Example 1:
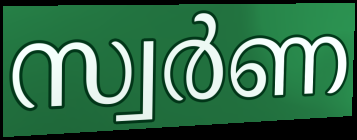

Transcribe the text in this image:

സ്വർണ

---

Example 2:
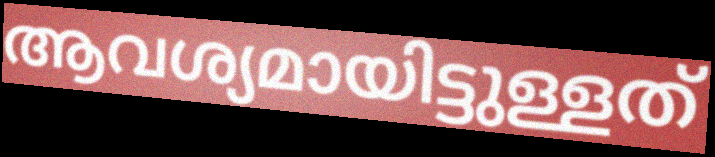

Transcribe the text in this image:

ആവശ്യമായിട്ടുള്ളത്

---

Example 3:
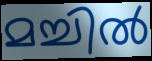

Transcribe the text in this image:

മച്ചിൽ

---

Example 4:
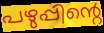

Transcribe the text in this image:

പഴുപ്പിന്റെ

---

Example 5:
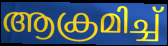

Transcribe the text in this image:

ആക്രമിച്ച്